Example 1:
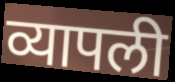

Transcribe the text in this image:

व्यापली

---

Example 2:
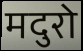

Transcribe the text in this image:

मदुरो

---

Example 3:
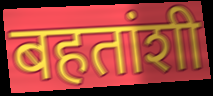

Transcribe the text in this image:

बहतांशी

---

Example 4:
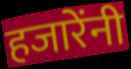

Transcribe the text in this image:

हजारेंनी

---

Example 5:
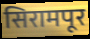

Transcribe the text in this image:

सिरामपूर